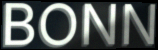
BONN